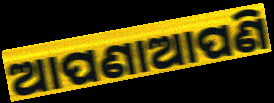
ଆପଣାଆପଣି